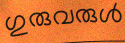
ഗുരുവരുൾ